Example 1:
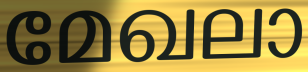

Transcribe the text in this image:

മേഖലാ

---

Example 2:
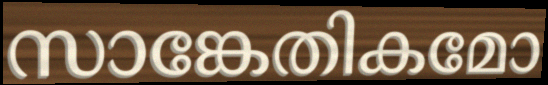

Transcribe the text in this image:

സാങ്കേതികമോ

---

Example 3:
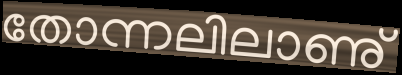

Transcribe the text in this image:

തോന്നലിലാണു്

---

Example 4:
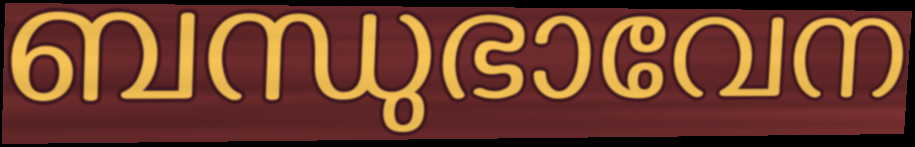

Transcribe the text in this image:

ബന്ധുഭാവേന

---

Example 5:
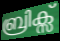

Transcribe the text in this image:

ബ്രിക്സ്